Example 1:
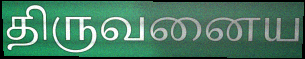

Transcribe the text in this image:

திருவனைய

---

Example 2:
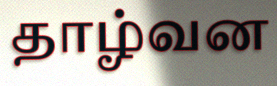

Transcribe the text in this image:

தாழ்வன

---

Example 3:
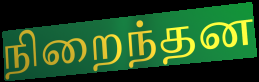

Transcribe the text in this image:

நிறைந்தன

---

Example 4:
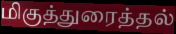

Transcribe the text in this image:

மிகுத்துரைத்தல்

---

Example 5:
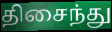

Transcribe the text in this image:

திசைந்து